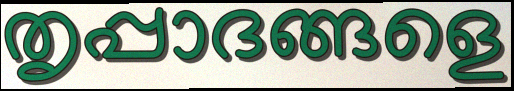
തൃപ്പാദങ്ങളെ